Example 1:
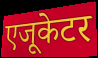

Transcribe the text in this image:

एजूकेटर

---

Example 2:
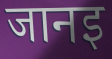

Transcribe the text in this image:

जानइ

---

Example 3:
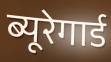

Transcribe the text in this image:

ब्यूरेगार्ड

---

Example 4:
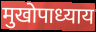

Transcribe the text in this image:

मुखोपाध्‍याय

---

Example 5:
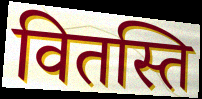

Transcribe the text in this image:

वितस्ति